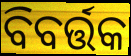
ବିବର୍ତ୍ତକ